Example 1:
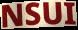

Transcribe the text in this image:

NSUI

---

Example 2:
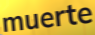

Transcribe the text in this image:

muerte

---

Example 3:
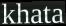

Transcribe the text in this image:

khata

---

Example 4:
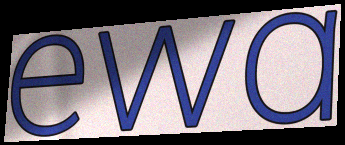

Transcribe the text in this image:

ewa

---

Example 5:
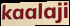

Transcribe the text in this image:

kaalaji